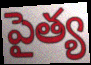
పైత్య